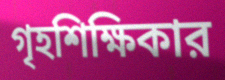
গৃহশিক্ষিকার